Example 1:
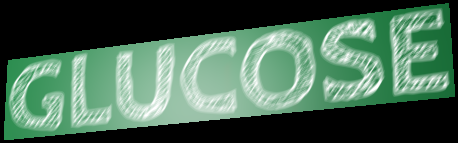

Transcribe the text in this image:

GLUCOSE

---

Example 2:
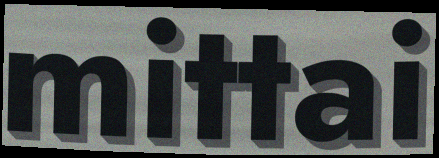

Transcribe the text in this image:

mittai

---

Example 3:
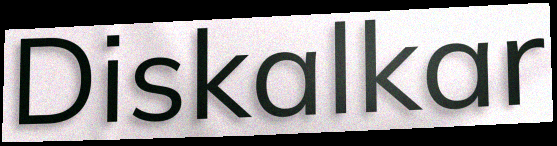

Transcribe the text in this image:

Diskalkar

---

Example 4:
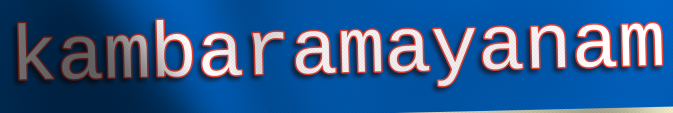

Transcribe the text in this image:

kambaramayanam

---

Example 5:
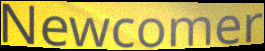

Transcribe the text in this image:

Newcomer